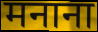
मनाना